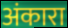
अंकारा